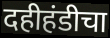
दहीहंडीचा